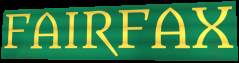
FAIRFAX